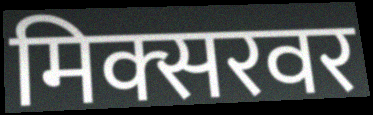
मिक्‍सरवर